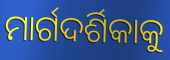
ମାର୍ଗଦର୍ଶିକାକୁ